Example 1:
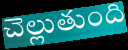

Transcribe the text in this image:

చెల్లుతుంది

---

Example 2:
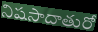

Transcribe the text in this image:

నిషసాదాతురో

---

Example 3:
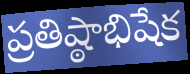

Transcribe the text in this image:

ప్రతిష్ఠాభిషేక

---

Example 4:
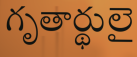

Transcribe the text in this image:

గృతార్థులై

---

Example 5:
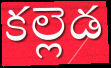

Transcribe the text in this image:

కల్లెడ